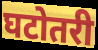
घटोतरी